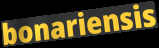
bonariensis